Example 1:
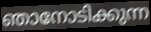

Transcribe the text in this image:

ഞാനോടിക്കുന്ന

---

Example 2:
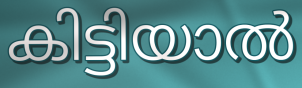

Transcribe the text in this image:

കിട്ടിയാൽ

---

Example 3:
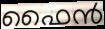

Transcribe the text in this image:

ഫൈൻ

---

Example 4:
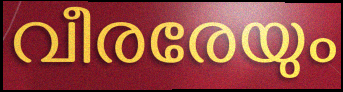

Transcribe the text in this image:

വീരരേയും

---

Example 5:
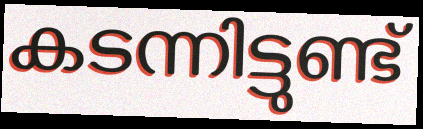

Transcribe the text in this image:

കടന്നിട്ടുണ്ട്